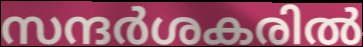
സന്ദർശകരിൽ